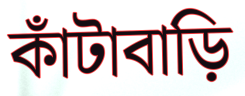
কাঁটাবাড়ি